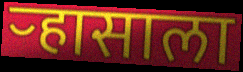
ऱ्हासाला